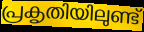
പ്രകൃതിയിലുണ്ട്